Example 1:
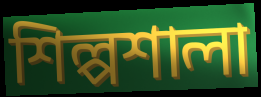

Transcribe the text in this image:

শিল্পশালা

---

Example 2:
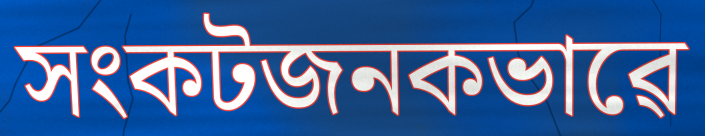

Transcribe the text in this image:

সংকটজনকভাৱে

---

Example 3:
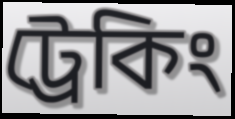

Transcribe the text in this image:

ট্ৰেকিং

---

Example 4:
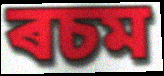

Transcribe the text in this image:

ৰচম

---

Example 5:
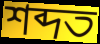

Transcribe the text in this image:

শব্দত